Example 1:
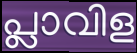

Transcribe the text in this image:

പ്ലാവിള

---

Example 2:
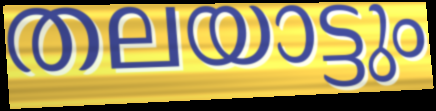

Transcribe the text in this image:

തലയാട്ടും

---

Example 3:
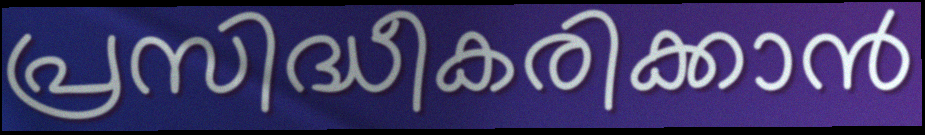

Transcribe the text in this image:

പ്രസിദ്ധീകരിക്കാൻ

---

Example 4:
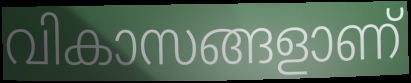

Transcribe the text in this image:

വികാസങ്ങളാണ്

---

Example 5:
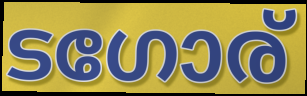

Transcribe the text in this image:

ടഗോര്